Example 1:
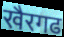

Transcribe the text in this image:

खैरगढ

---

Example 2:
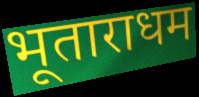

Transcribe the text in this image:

भूताराधम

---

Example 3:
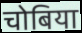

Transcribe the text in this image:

चोबिया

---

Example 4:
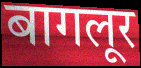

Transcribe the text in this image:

बागलूर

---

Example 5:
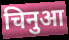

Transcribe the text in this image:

चिनुआ